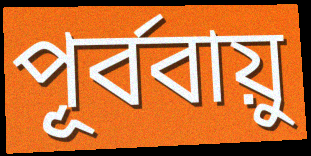
পূর্ববায়ু